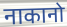
नाकानो